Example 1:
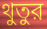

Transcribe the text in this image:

থুতুর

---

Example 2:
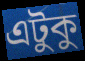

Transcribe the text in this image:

এটুকু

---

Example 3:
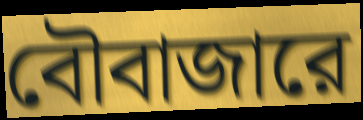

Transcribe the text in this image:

বৌবাজারে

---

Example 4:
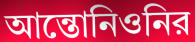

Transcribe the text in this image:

আন্তোনিওনির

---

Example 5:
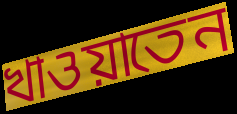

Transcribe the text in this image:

খাওয়াতেন